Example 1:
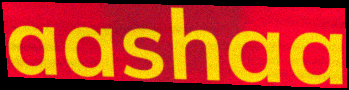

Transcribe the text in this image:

aashaa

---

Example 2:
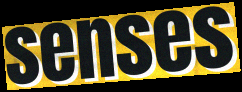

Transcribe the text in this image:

senses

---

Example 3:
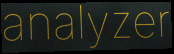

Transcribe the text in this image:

analyzer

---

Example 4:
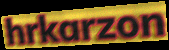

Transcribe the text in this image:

hrkarzon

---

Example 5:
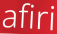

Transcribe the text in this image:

afiri